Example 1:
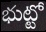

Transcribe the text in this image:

భుట్టో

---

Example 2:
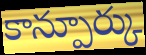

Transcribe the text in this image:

కాన్పూర్కు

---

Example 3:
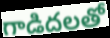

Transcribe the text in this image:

గాడిదలతో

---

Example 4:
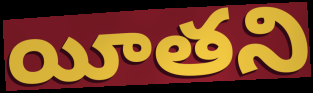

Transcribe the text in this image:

యీతని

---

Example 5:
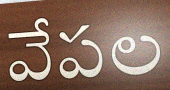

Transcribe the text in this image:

వేపల